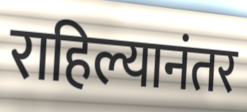
राहिल्यानंतर